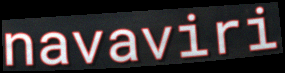
navaviri